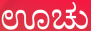
ಊಚು